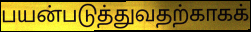
பயன்படுத்துவதற்காகக்